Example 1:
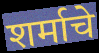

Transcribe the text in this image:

शर्माचे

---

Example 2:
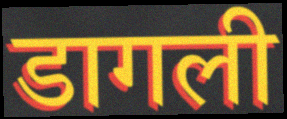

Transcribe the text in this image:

डागली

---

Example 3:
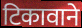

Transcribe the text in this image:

टिकावाने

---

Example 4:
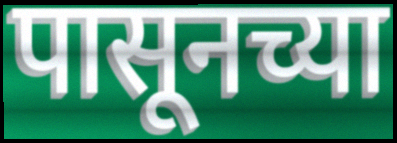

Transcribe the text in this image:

पासूनच्या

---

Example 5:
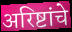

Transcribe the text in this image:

अरिष्टांचे